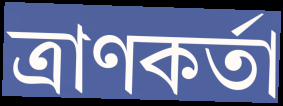
ত্ৰাণকৰ্তা